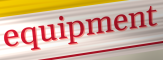
equipment